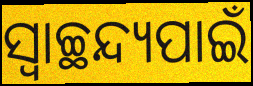
ସ୍ୱାଚ୍ଛନ୍ଦ୍ୟପାଇଁ